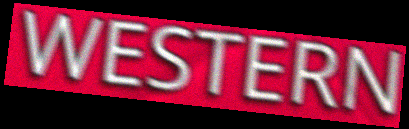
WESTERN